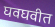
घवघवीत